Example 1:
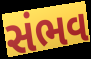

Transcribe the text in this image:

સંભવ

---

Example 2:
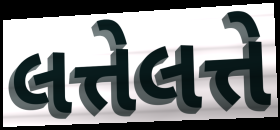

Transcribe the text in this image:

લત્તેલત્તે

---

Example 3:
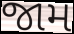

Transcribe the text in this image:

જામ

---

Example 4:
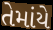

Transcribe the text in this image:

તેમાંયે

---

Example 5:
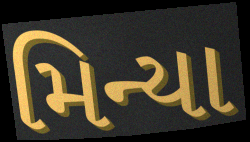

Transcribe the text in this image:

મિન્યા